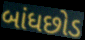
બાંધછોડ